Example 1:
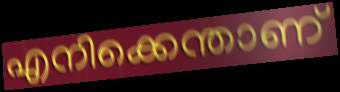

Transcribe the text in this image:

എനിക്കെന്താണ്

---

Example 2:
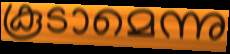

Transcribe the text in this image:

കൂടാമെന്നു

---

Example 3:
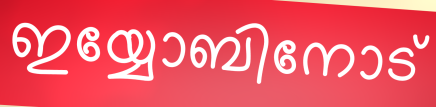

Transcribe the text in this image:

ഇയ്യോബിനോട്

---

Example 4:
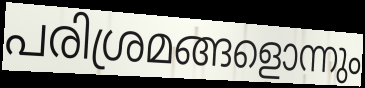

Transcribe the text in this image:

പരിശ്രമങ്ങളൊന്നും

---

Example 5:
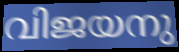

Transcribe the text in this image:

വിജയനു